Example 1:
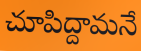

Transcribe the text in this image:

చూపిద్దామనే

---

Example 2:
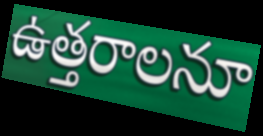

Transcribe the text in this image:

ఉత్తరాలనూ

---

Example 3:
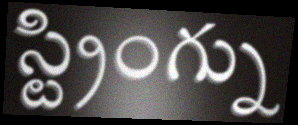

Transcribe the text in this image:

స్ట్రింగ్ను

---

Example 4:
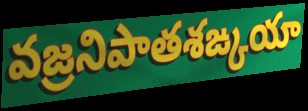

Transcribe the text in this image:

వజ్రనిపాతశఙ్కయా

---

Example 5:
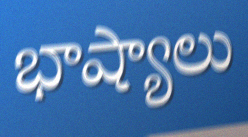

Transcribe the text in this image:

భాష్యాలు